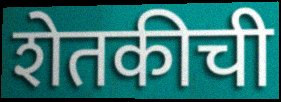
शेतकीची